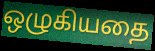
ஒழுகியதை